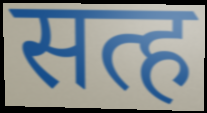
सत्ह